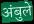
अंबुले